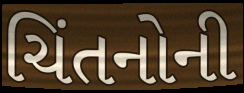
ચિંતનોની